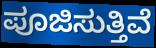
ಪೂಜಿಸುತ್ತಿವೆ